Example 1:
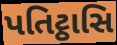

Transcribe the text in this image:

પતિટ્ઠાસિ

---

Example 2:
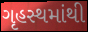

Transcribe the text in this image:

ગૃહસ્થમાંથી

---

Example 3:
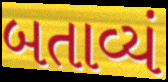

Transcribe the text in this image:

બતાવ્યં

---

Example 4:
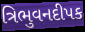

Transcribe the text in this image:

ત્રિભુવનદીપક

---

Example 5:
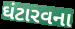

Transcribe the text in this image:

ઘંટારવના